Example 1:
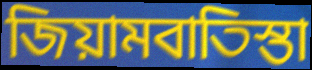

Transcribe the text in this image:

জিয়ামবাতিস্তা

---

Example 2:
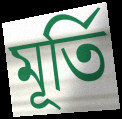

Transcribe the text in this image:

মূর্তি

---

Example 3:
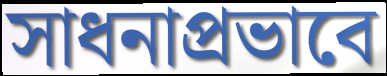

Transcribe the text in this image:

সাধনাপ্রভাবে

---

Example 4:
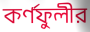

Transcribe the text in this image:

কর্ণফুলীর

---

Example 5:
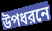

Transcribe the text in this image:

উপধরনে